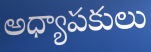
అధ్యాపకులు